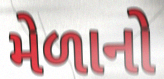
મેળાનો